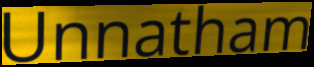
Unnatham